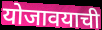
योजावयाची